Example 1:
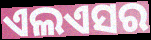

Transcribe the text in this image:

ଏଲଏସର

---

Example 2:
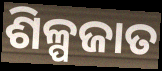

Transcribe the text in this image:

ଶିଳ୍ପଜାତ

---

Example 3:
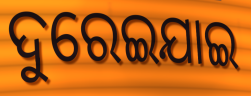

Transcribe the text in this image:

ଦୁରେଇଯାଇ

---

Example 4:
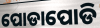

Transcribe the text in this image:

ପୋଡାପୋଡି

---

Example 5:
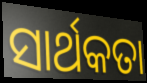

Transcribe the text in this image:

ସାର୍ଥକତା